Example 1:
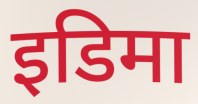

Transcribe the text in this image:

इडिमा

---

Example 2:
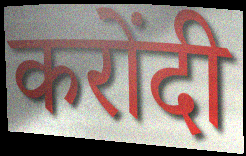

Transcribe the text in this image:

करोंदी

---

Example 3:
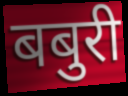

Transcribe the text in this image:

बबुरी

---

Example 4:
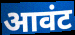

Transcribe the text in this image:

आवंट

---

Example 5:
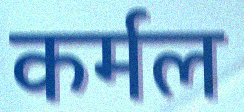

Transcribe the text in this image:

कर्मल